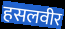
हसलवीर